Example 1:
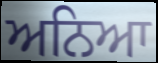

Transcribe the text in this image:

ਅਨਿਆ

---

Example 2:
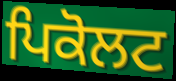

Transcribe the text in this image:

ਪਿਕੋਲਟ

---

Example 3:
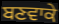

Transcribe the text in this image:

ਬਣਵਾਕੇ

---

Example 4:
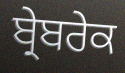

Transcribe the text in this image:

ਬ੍ਰੇਬਰੇਕ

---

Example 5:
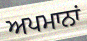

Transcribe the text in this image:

ਅਪਮਾਨਾਂ